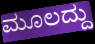
ಮೂಲದ್ದು